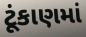
ટૂંકાણમાં